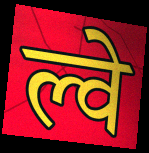
ल्वे